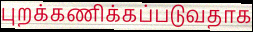
புறக்கணிக்கப்படுவதாக